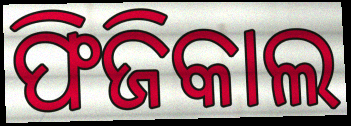
ଫିଜିକାଲ